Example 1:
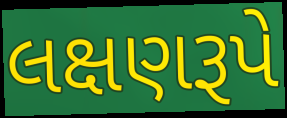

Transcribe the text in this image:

લક્ષણરૂપે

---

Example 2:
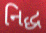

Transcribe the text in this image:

નિદ્ધ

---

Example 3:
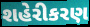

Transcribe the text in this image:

શહેરીકરણ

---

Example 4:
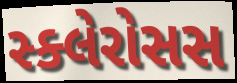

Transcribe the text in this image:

સ્ક્લેરોસસ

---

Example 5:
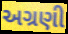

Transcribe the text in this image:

અગ્રણી